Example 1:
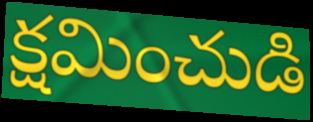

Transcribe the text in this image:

క్షమించుడి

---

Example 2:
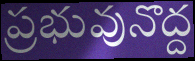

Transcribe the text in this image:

ప్రభువునొద్ద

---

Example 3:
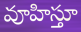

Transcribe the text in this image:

వూహిస్తూ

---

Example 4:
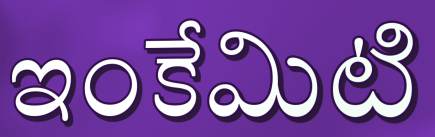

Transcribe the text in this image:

ఇంకేమిటి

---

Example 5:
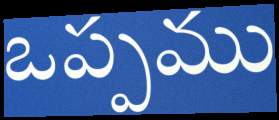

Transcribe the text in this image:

ఒప్పము